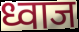
ध्वाज